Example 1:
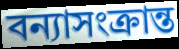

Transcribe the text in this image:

বন্যাসংক্রান্ত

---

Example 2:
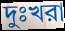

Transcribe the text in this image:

দুঃখরা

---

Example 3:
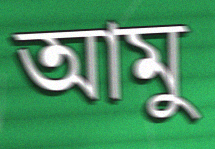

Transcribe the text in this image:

আমু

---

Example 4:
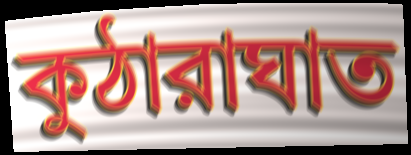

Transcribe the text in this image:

কুঠারাঘাত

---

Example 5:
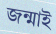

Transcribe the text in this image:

জন্মাই